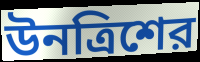
উনত্রিশের